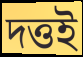
দত্তই